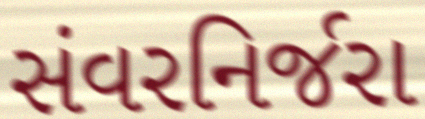
સંવરનિર્જરા